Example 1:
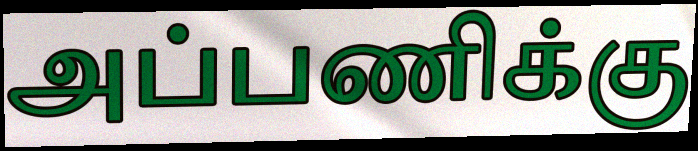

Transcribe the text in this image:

அப்பணிக்கு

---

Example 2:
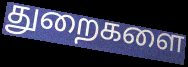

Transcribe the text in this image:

துறைகளை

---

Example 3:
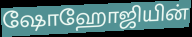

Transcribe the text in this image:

ஷோஹோஜியின்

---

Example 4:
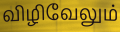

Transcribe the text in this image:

விழிவேலும்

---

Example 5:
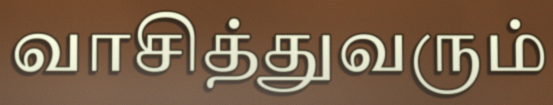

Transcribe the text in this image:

வாசித்துவரும்